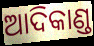
ଆଦିକାଣ୍ଡ